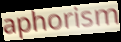
aphorism